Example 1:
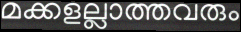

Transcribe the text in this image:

മക്കളല്ലാത്തവരും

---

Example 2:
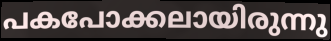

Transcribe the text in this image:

പകപോക്കലായിരുന്നു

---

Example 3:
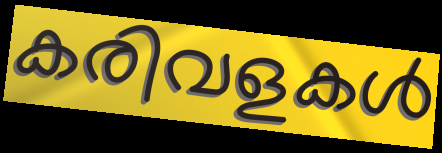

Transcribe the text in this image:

കരിവളകൾ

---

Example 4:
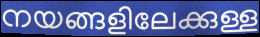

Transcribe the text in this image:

നയങ്ങളിലേക്കുള്ള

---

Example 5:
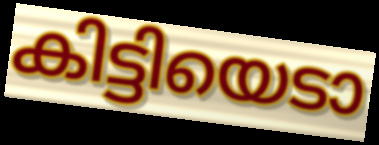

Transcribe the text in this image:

കിട്ടിയെടാ